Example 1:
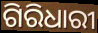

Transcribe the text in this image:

ଗିରିଧାରୀ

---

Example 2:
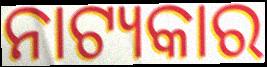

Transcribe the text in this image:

ନାଟ୍ୟକାର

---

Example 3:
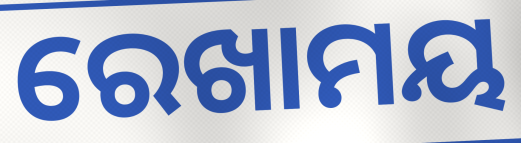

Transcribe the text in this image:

ରେଖାମୟ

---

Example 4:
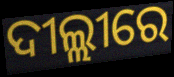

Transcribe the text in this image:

ଦୀଲ୍ଲୀରେ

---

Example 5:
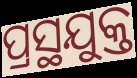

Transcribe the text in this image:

ପ୍ରସ୍ଥଯୁକ୍ତ